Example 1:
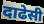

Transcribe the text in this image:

दाढेसी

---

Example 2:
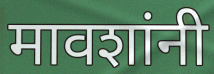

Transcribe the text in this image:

मावशांनी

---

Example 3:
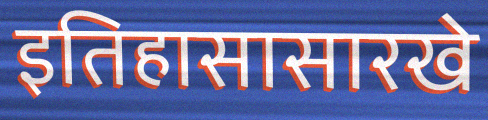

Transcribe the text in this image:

इतिहासासारखे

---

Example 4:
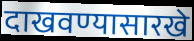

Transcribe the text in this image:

दाखवण्यासारखे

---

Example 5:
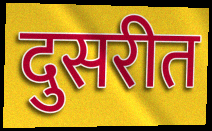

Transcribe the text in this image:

दुसरीत